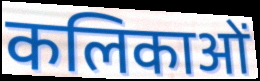
कलिकाओं